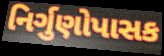
નિર્ગુણોપાસક